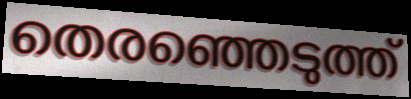
തെരഞ്ഞെടുത്ത്